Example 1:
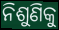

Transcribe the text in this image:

ନିଶୁଣିକୁ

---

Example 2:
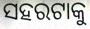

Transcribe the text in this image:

ସହରଟାକୁ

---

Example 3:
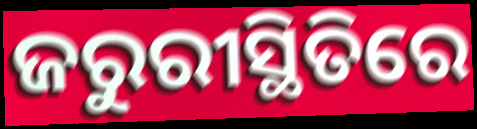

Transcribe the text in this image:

ଜରୁରୀସ୍ଥିତିରେ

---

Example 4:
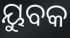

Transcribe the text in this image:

ୟୁବକ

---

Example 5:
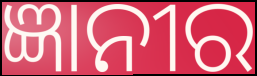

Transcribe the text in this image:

ଜ୍ଞାନୀର